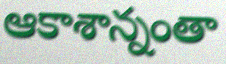
ఆకాశాన్నంతా